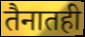
तैनातही